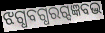
ଝଗ୍ଧବଗ୍ଧରଗ୍ଦଜ୍ଞବଦ୍ଭ